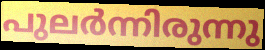
പുലർന്നിരുന്നു